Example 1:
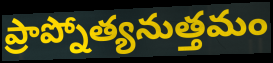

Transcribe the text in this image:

ప్రాప్నోత్యనుత్తమం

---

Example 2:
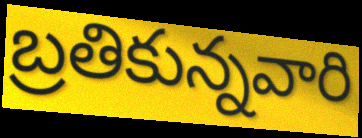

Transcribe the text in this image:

బ్రతికున్నవారి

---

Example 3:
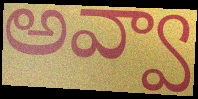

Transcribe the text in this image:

అవ్వా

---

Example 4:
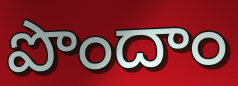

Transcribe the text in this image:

పొందాం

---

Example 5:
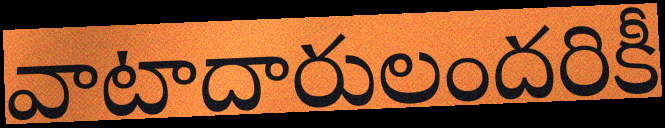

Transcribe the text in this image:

వాటాదారులందరికీ